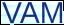
VAM